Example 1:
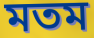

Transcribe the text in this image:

মতম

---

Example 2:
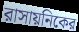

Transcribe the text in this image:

রাসায়নিকের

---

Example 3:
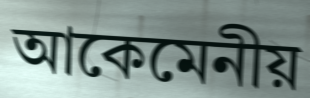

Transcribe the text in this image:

আকেমেনীয়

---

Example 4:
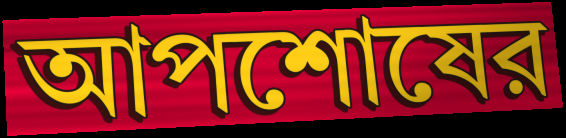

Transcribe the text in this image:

আপশোষের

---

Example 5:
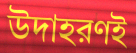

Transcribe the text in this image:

উদাহরণই